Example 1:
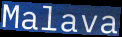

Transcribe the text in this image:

Malava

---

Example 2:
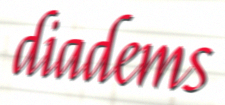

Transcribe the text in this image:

diadems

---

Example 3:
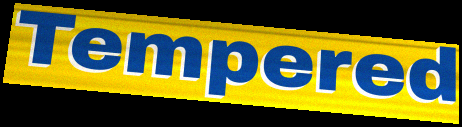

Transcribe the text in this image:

Tempered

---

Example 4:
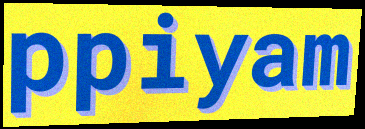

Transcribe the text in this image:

ppiyam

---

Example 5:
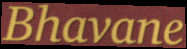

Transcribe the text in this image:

Bhavane